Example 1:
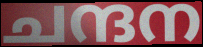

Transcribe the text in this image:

ചന്ദന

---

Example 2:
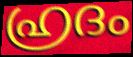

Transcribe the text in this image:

ഹ്രദം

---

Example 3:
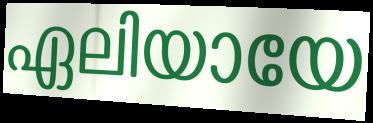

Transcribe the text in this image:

ഏലിയായേ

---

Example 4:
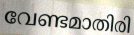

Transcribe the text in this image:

വേണ്ടമാതിരി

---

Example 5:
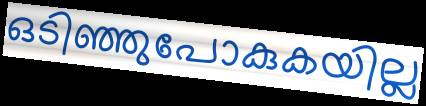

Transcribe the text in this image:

ഒടിഞ്ഞുപോകുകയില്ല